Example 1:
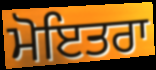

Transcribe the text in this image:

ਮੋਇਤਰਾ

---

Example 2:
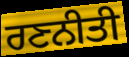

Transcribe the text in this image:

ਰਣਨੀਤੀ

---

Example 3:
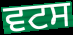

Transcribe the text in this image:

ਵਟਸ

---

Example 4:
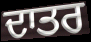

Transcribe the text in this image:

ਦਾਤਰ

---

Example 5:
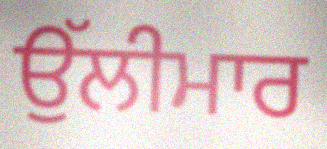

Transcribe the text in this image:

ਉੱਲੀਮਾਰ